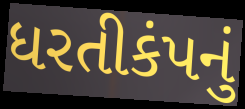
ધરતીકંપનું